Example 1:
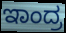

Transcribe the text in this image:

ಇಾಂದ್ರ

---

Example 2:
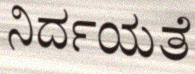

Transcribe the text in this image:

ನಿರ್ದಯತೆ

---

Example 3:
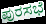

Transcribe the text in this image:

ಪುರಸಭೆ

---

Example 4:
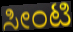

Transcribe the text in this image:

ಸೀಂಟಿ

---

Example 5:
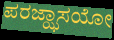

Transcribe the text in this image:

ಪರಜ್ಝಾಸಯೋ